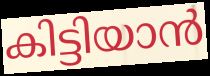
കിട്ടിയാൻ